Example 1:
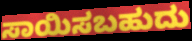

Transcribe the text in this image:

ಸಾಯಿಸಬಹುದು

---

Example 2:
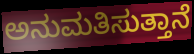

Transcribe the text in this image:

ಅನುಮತಿಸುತ್ತಾನೆ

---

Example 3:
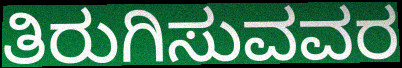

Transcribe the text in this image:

ತಿರುಗಿಸುವವರ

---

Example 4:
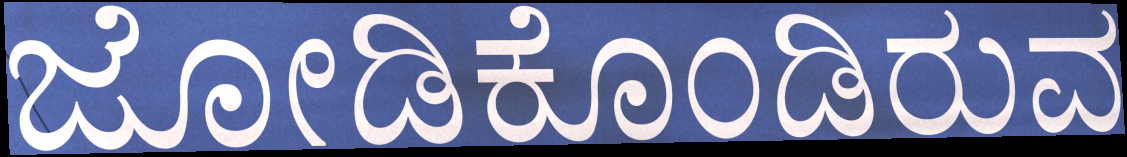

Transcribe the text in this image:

ಜೋಡಿಕೊಂಡಿರುವ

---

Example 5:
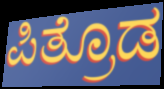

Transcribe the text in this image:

ಪಿತ್ರೊಡ